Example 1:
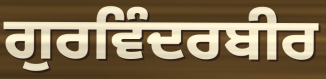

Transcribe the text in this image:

ਗੁਰਵਿੰਦਰਬੀਰ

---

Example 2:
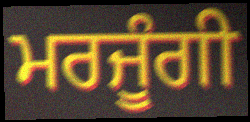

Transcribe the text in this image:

ਮਰਜੂੰਗੀ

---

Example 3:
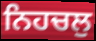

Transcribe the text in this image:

ਨਿਹਚਲੁ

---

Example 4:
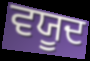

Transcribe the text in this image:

ਵਯੂਦ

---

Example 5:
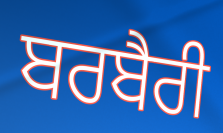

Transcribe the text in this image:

ਬਰਬੈਰੀ